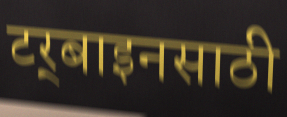
टर्बाइनसाठी